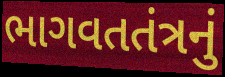
ભાગવતતંત્રનું